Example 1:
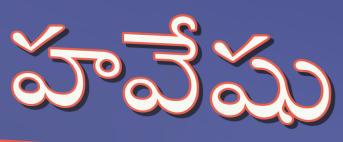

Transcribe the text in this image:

హవేషు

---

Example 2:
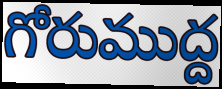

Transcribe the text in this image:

గోరుముద్ద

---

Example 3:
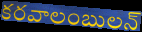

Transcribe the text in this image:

కరవాలంబులన్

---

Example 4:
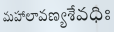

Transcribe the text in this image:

మహాలావణ్యశేవధిః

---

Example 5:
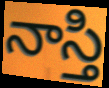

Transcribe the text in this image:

నాస్తి